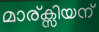
മാര്ക്സിയന്